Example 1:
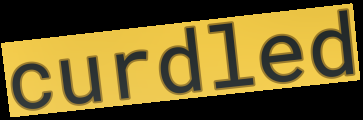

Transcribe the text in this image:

curdled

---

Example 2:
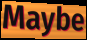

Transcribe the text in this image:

Maybe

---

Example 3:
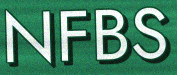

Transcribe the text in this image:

NFBS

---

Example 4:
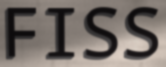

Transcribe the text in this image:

FISS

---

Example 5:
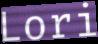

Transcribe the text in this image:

Lori